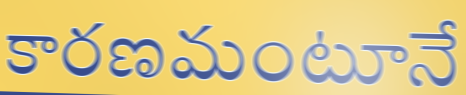
కారణమంటూనే